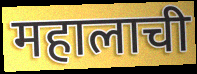
महालाची